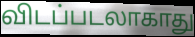
விடப்படலாகாது